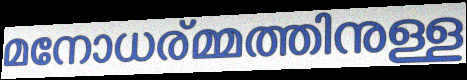
മനോധര്മ്മത്തിനുള്ള